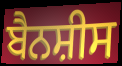
ਬੈਨਸ਼ੀਸ